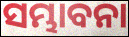
ସମ୍ଭାବନା